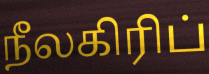
நீலகிரிப்